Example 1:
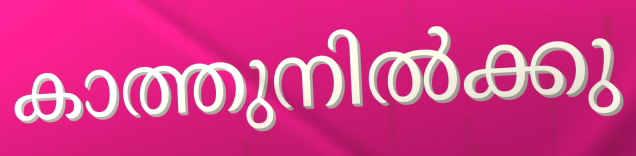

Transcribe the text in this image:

കാത്തുനിൽക്കു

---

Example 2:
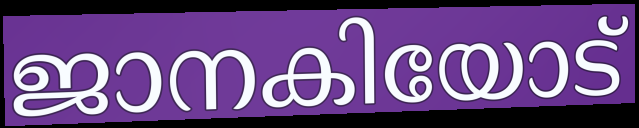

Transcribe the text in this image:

ജാനകിയോട്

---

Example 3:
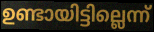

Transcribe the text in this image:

ഉണ്ടായിട്ടില്ലെന്ന്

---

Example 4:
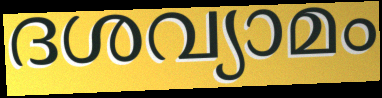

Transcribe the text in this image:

ദശവ്യാമം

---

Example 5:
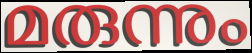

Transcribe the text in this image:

മരുന്നും